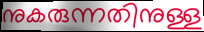
നുകരുന്നതിനുള്ള